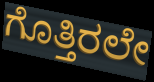
ಗೊತ್ತಿರಲೇ